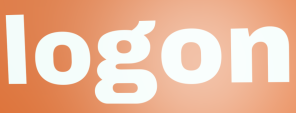
logon